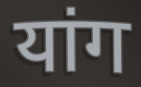
यांग